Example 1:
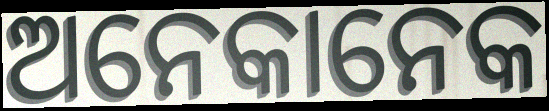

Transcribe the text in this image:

ଅନେକାନେକ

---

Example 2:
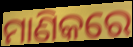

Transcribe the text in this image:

ମାଣିକରେ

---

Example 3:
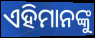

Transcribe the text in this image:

ଏହିମାନଙ୍କୁ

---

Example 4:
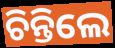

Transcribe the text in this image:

ଚିନ୍ତିଲେ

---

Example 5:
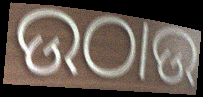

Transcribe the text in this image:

ଉଠାଉ